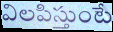
విలపిస్తుంటే